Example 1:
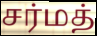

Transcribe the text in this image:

சர்மத்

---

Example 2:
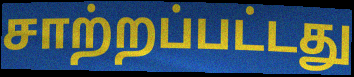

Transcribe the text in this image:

சாற்றப்பட்டது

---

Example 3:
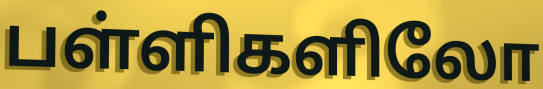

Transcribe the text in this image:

பள்ளிகளிலோ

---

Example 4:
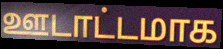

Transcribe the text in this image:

ஊடாட்டமாக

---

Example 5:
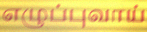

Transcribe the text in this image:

எழுப்புவாய்